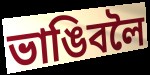
ভাঙিবলৈ